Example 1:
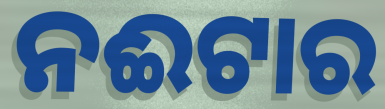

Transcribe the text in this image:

ନଈଟାର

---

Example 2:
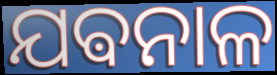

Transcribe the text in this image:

ଯଵନାଳ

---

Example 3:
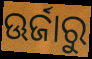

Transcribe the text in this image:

ଊର୍ଜାରୁ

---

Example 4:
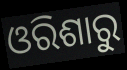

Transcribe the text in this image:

ଓରିଶାରୁ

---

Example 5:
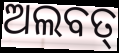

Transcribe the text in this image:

ଅଲବତ୍